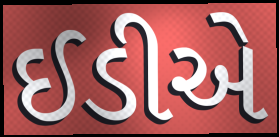
ઈડીએ